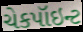
ચેકપૉઇન્ટ